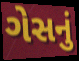
ગેસનું